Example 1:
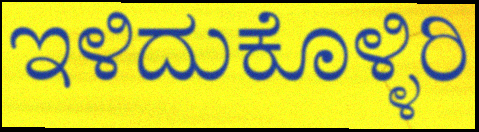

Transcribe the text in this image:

ಇಳಿದುಕೊಳ್ಳಿರಿ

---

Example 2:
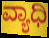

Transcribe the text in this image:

ವ್ಯಾಧಿ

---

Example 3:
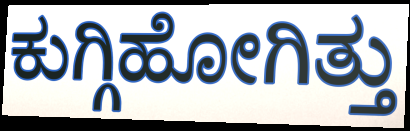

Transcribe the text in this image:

ಕುಗ್ಗಿಹೋಗಿತ್ತು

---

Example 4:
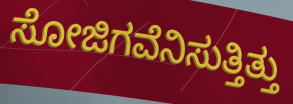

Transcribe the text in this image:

ಸೋಜಿಗವೆನಿಸುತ್ತಿತ್ತು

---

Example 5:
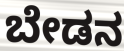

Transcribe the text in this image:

ಬೇಡನ